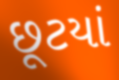
છૂટયાં